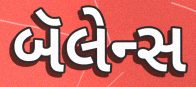
બૅલેન્સ